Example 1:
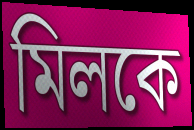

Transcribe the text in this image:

মিলকে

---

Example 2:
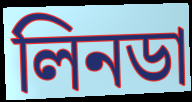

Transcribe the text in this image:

লিনডা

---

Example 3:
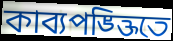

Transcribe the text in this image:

কাব্যপঙ্ক্তিতে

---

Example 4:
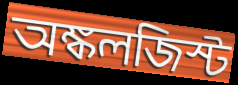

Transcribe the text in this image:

অঙ্কলজিস্ট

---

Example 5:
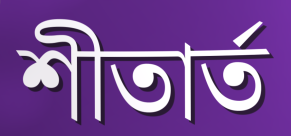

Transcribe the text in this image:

শীতার্ত